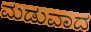
ಮಡುವಾದ